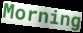
Morning